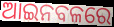
ଆଇନବଳରେ